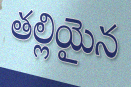
తల్లియైన